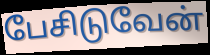
பேசிடுவேன்